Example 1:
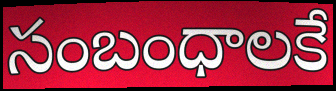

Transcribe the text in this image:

సంబంధాలకే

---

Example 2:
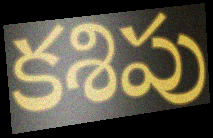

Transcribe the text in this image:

కశిపు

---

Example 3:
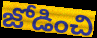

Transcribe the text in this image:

జోడించి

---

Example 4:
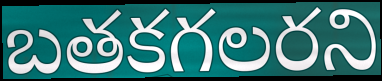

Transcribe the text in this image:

బతకగలరని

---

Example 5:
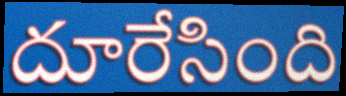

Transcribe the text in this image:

దూరేసింది